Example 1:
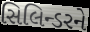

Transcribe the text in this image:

સિલિન્ડરને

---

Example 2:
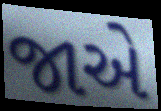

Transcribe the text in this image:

જાએ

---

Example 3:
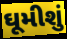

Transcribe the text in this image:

ઘૂમીશું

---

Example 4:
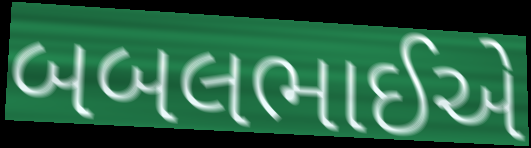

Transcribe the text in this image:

બબલભાઈએ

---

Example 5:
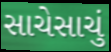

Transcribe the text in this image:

સાચેસાચું